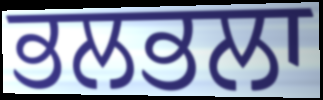
ਭਲਭਲਾ